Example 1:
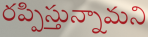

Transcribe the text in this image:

రప్పిస్తున్నామని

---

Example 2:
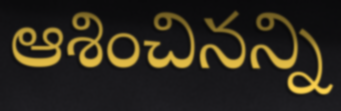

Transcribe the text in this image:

ఆశించినన్ని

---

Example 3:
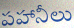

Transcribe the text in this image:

పహానీలు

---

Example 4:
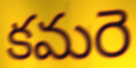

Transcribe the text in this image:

కమరె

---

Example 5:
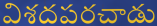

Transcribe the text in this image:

విశదపరచాడు